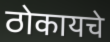
ठोकायचे